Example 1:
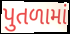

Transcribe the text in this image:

પુતળામાં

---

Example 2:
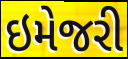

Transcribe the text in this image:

ઇમેજરી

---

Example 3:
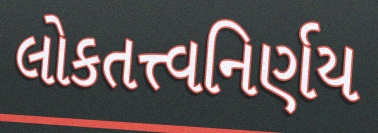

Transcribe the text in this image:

લોકતત્ત્વનિર્ણય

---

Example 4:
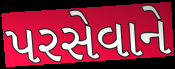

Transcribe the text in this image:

પરસેવાને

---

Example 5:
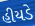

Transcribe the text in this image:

હીયડે